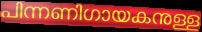
പിന്നണിഗായകനുള്ള